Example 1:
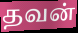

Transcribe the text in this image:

தவன்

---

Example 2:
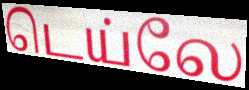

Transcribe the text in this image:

டெய்லே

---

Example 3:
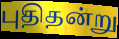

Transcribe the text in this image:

புதிதன்று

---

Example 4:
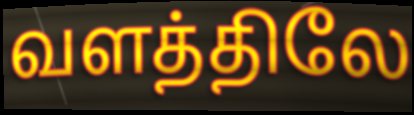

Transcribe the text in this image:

வளத்திலே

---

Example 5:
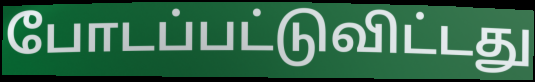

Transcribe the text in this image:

போடப்பட்டுவிட்டது